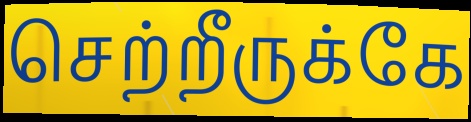
செற்றீருக்கே